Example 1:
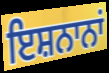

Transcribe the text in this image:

ਇਸ਼ਨਾਨਾਂ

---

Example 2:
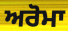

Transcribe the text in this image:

ਅਰੋਮਾ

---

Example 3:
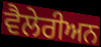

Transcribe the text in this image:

ਵੈਲੇਰੀਅਨ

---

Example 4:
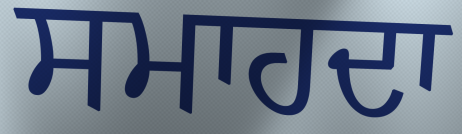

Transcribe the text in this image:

ਸਮਾਹਦਾ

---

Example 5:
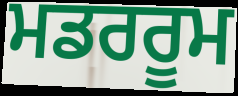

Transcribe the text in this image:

ਮਡਰਰੂਮ